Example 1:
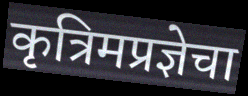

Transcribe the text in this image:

कृत्रिमप्रज्ञेचा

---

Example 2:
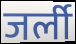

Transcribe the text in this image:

जर्ली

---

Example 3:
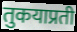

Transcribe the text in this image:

तुकयाप्रती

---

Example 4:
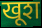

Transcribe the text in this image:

खूश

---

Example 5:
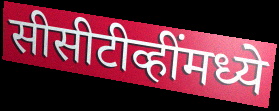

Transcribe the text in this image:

सीसीटीव्हींमध्ये